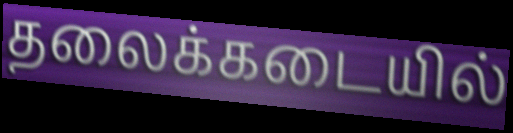
தலைக்கடையில்